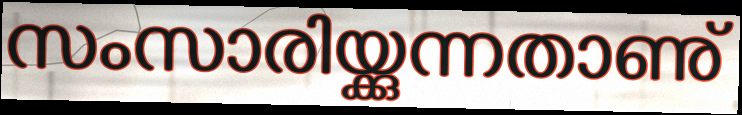
സംസാരിയ്ക്കുന്നതാണു്